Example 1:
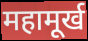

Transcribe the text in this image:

महामूर्ख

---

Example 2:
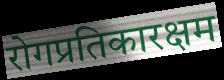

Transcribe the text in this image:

रोगप्रतिकारक्षम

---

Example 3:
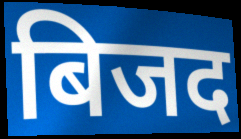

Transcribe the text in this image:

बिजद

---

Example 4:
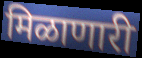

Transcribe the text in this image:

मिळाणारी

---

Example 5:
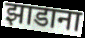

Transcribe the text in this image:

झाडाना